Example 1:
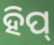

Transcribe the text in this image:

ହିପ୍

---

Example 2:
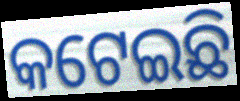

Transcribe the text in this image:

କଟେଇଛି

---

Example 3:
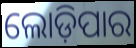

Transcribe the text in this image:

ଲୋଡ଼ିପାର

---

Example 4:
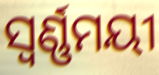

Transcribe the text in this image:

ସ୍ୱର୍ଣ୍ଣମୟୀ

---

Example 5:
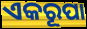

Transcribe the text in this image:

ଏକରୂପା